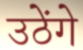
उठेंगे